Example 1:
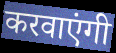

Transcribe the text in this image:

करवाएंगी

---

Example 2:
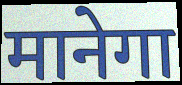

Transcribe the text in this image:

मानेगा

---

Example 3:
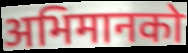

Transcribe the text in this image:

अभिमानको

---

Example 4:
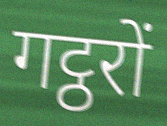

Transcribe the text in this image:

गट्ठरों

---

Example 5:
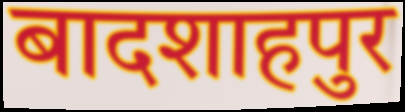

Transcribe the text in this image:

बादशाहपुर